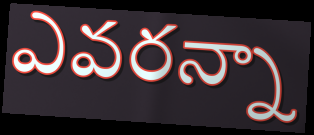
ఎవరన్నా